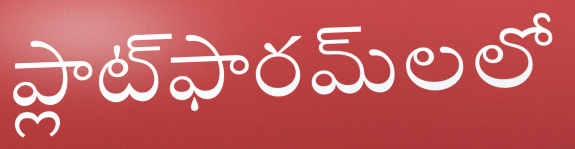
ప్లాట్‌ఫారమ్‌లలో